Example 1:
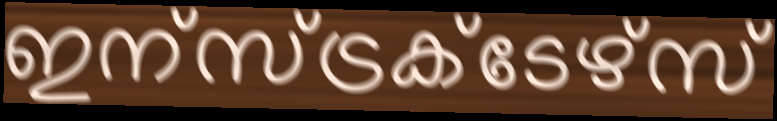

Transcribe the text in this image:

ഇന്സ്ട്രക്ടേഴ്സ്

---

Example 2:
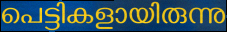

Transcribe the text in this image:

പെട്ടികളായിരുന്നു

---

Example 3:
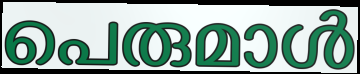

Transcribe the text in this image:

പെരുമാൾ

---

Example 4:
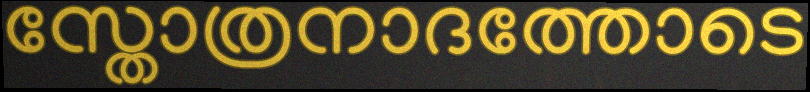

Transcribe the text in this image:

സ്തോത്രനാദത്തോടെ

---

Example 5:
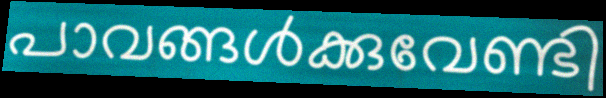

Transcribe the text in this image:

പാവങ്ങൾക്കുവേണ്ടി